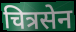
चित्रसेन